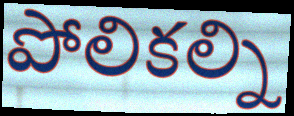
పోలికల్ని